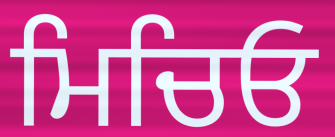
ਮਿਚਿਓ